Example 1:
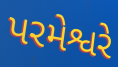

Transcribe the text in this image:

પરમેશ્વરે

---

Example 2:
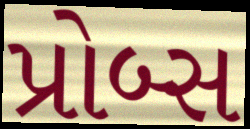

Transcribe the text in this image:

પ્રોબ્સ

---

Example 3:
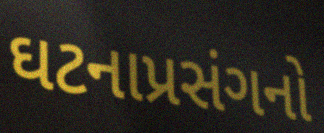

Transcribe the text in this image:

ઘટનાપ્રસંગનો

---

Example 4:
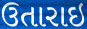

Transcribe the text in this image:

ઉતારાઇ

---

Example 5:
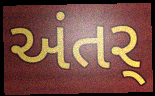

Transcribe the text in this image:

અંતર્